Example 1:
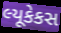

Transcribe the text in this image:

લ્યૂકેકસ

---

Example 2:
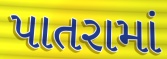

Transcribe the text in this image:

પાતરામાં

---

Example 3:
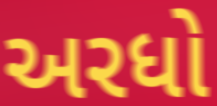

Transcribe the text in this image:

અરધો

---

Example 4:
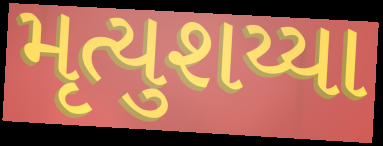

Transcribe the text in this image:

મૃત્યુશય્યા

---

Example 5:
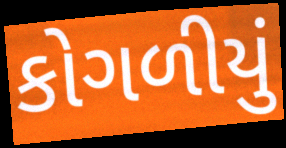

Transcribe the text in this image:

કોગળીયું